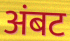
अंबट